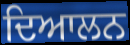
ਦਿਆਲਨ